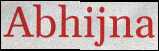
Abhijna